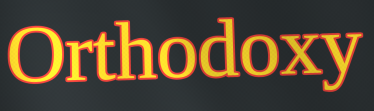
Orthodoxy